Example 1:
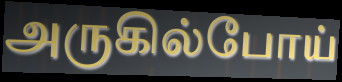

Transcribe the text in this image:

அருகில்போய்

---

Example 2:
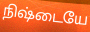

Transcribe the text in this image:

நிஷ்டையே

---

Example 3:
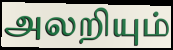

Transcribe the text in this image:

அலறியும்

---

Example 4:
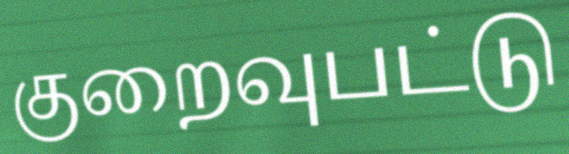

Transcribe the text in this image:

குறைவுபட்டு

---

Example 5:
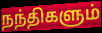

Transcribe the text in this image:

நந்திகளும்